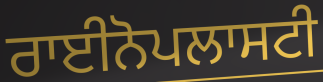
ਰਾਈਨੋਪਲਾਸਟੀ